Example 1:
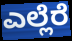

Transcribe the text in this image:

ಎಲ್ಲೆರೆ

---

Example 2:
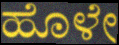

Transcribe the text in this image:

ಹೊಳೇ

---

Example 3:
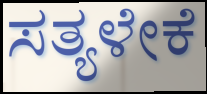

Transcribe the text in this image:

ಸತ್ಯಳೇಕೆ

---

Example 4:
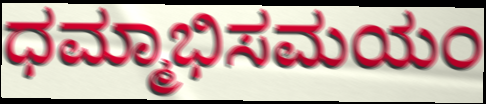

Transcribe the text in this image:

ಧಮ್ಮಾಭಿಸಮಯಂ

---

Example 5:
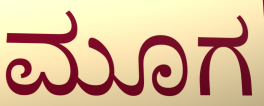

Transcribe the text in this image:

ಮೂಗ